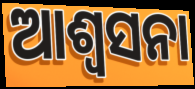
ଆଶ୍ୱସନା